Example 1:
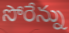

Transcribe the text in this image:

సోరేన్ను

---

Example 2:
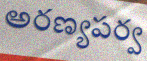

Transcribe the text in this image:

అరణ్యపర్వ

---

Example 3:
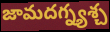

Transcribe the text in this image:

జామదగ్న్యశ్చ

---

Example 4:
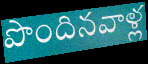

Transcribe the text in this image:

పొందినవాళ్ల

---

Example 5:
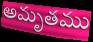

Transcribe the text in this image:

అమృతము